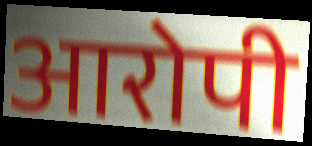
आरोपी